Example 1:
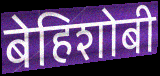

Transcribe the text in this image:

बेहिशोबी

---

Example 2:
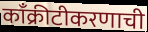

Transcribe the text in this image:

काँक्रीटीकरणाची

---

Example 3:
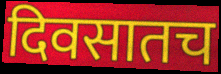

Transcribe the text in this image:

दिवसातच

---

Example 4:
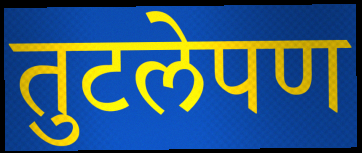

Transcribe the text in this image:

तुटलेपण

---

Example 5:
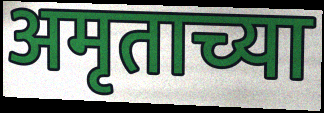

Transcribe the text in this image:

अमृताच्या